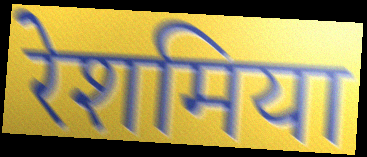
रेशमिया